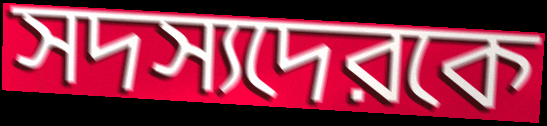
সদস্যদেরকে